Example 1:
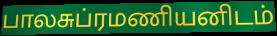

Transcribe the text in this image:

பாலசுப்ரமணியனிடம்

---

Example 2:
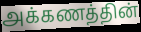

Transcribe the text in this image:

அக்கணத்தின்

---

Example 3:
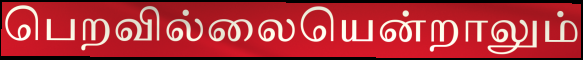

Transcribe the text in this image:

பெறவில்லையென்றாலும்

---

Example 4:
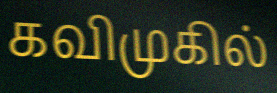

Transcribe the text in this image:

கவிமுகில்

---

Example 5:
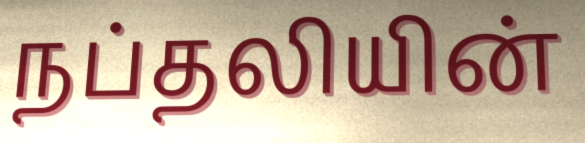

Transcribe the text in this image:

நப்தலியின்